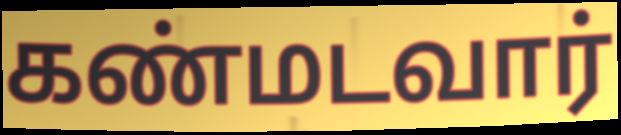
கண்மடவார்